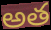
అత